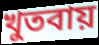
খুতবায়